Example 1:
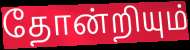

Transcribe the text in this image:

தோன்றியும்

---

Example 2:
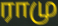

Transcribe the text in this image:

ராமு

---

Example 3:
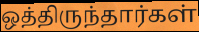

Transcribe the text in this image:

ஒத்திருந்தார்கள்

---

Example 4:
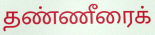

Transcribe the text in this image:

தண்ணீரைக்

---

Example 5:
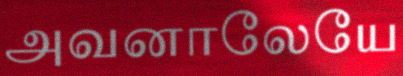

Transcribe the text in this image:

அவனாலேயே